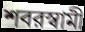
শবরস্বামী